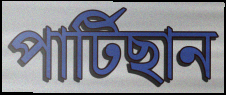
পাৰ্টিছান